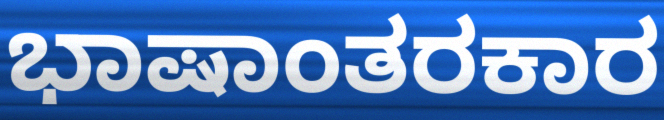
ಭಾಷಾಂತರಕಾರ